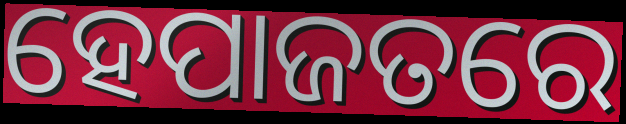
ହେପାଜତରେ